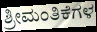
ಶ್ರೀಮಂತಿಕೆಗಳ